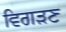
ਵਿਗੜਣ